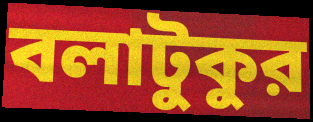
বলাটুকুর